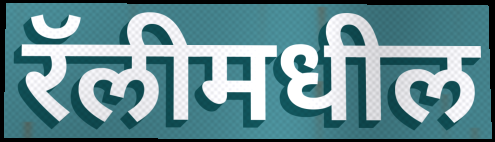
रॅलीमधील